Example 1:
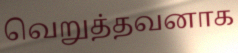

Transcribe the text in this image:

வெறுத்தவனாக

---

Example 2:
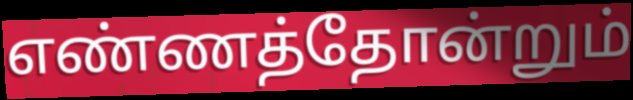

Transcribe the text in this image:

எண்ணத்தோன்றும்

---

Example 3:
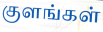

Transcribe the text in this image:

குளங்கள்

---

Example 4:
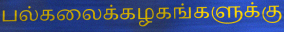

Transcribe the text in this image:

பல்கலைக்கழகங்களுக்கு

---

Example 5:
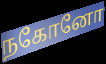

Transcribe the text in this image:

நகோனோ